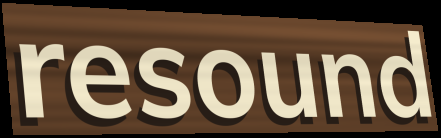
resound